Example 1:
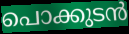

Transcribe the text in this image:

പൊക്കുടൻ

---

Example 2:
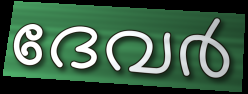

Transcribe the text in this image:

ദേവർ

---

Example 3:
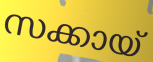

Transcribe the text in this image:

സക്കായ്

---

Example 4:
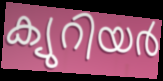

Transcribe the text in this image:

ക്യുറിയർ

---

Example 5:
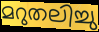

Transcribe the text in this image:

മറുതലിച്ചു